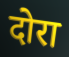
दोरा